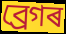
ব্ৰেগৰ